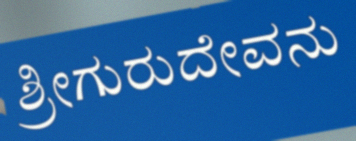
ಶ್ರೀಗುರುದೇವನು